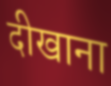
दीखाना